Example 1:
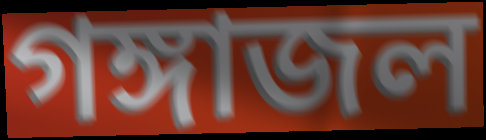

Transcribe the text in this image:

গঙ্গাজল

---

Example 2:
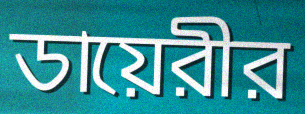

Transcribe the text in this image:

ডায়েরীর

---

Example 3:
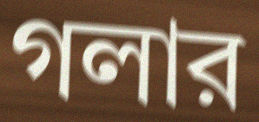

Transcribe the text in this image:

গলার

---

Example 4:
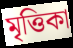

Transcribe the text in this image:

মৃত্তিকা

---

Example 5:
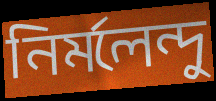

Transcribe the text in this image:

নির্মলেন্দু